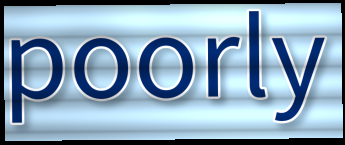
poorly